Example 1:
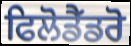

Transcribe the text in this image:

ਫਿਲੋਡੈਂਡਰੋ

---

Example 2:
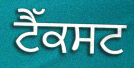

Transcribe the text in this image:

ਟੈੱਕਸਟ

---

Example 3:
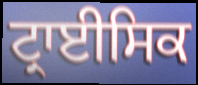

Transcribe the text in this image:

ਟ੍ਰਾਈਸਿਕ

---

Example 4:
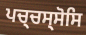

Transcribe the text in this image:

ਪਚ੍ਚਸ੍ਸੋਸਿ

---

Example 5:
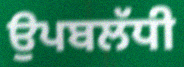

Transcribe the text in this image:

ਉਪਬਲੱਧੀ